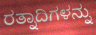
ರತ್ನಾದಿಗಳನ್ನು